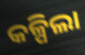
କଳ୍ପିଲା